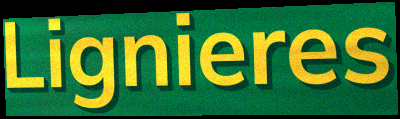
Lignieres